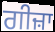
ਗੀਜ਼ਾ